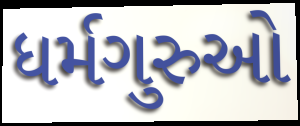
ધર્મગુરુઓ